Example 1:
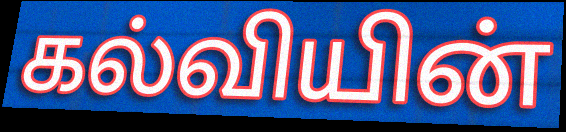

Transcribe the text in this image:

கல்வியின்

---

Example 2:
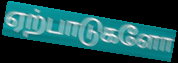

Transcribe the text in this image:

ஏற்பாடுகளோ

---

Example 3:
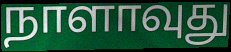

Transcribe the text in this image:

நாளாவுது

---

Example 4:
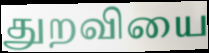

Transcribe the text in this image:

துறவியை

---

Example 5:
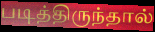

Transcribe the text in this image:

படித்திருந்தால்